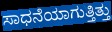
ಸಾಧನೆಯಾಗುತ್ತಿತ್ತು